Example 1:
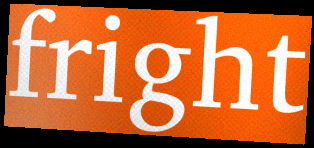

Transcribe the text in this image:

fright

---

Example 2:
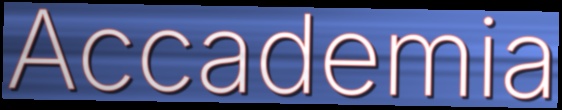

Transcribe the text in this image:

Accademia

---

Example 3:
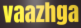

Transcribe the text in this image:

vaazhga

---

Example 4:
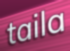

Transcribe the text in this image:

taila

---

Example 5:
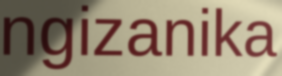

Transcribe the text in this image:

ngizanika